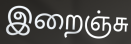
இறைஞ்சு